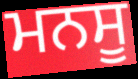
ਮਨਸੂ